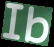
Ib